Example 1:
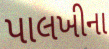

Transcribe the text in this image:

પાલખીના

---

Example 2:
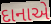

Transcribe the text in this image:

દાનાએ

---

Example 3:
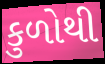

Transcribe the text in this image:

કુળોથી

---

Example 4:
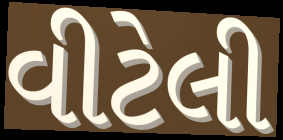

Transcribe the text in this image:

વીટેલી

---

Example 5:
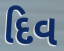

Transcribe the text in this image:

દિવ